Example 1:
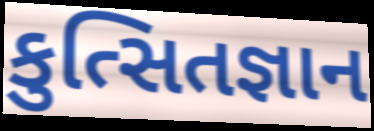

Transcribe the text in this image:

કુત્સિતજ્ઞાન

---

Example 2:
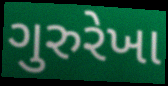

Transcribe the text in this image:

ગુરુરેખા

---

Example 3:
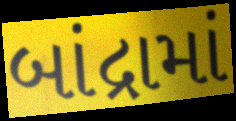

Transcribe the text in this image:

બાંદ્રામાં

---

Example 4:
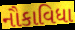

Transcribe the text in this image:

નૌકાવિધા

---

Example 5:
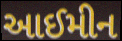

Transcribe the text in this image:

આઈમીન